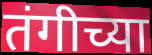
तंगीच्या